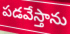
పడవేస్తాను